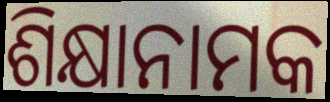
ଶିକ୍ଷାନାମକ